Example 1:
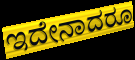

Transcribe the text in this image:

ಇದೇನಾದರೂ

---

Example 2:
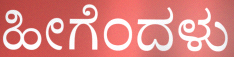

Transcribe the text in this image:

ಹೀಗೆಂದಳು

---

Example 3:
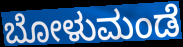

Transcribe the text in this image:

ಬೋಳುಮಂಡೆ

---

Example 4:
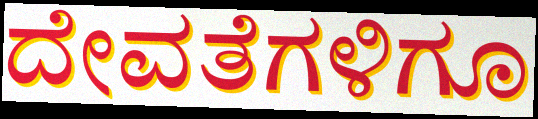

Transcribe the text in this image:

ದೇವತೆಗಳಿಗೂ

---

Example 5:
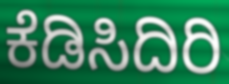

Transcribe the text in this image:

ಕೆಡಿಸಿದಿರಿ